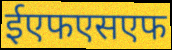
ईएफएसएफ